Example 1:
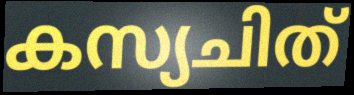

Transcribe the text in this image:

കസ്യചിത്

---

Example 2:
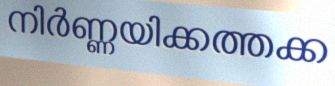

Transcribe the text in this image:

നിർണ്ണയിക്കത്തക്ക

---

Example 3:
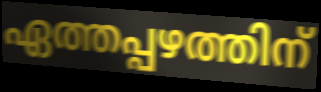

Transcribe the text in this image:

ഏത്തപ്പഴത്തിന്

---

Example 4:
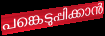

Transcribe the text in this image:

പങ്കെടുപ്പിക്കാൻ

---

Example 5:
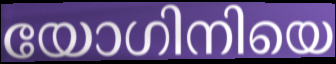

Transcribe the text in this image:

യോഗിനിയെ